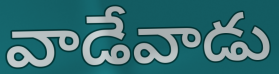
వాడేవాడు